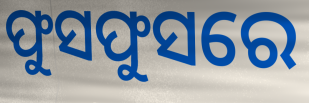
ଫୁସଫୁସରେ